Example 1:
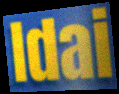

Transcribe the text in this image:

Idai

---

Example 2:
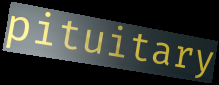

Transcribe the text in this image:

pituitary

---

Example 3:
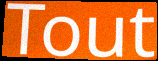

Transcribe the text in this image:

Tout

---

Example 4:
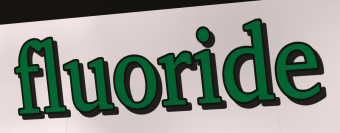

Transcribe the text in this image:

fluoride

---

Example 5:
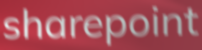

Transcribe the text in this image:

sharepoint